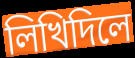
লিখিদিলে